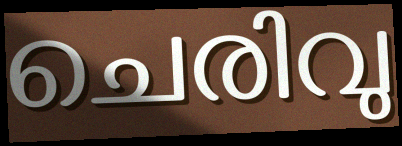
ചെരിവു